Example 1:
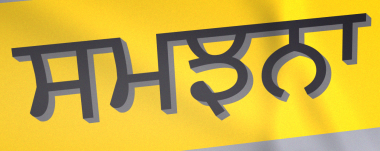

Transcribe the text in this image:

ਸਮਝਨਾ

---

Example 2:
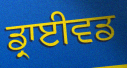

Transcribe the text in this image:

ਡ੍ਰਾਈਵਡ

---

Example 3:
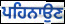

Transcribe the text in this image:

ਪਹਿਨਾਉਣ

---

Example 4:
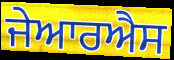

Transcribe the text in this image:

ਜੇਆਰਐਸ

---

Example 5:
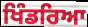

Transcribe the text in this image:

ਖਿੰਡਰਿਆ